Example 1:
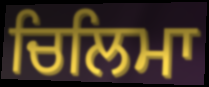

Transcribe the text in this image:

ਚਿਲਿਮਾ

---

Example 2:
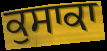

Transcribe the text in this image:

ਕੁਸਾਕਾ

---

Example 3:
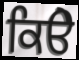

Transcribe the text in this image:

ਕਿੳੇ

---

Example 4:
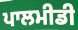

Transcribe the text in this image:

ਪਾਲਮੀਡੀ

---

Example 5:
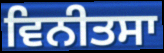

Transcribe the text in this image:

ਵਿਨੀਤਸਾ